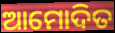
ଆମୋଦିତ